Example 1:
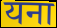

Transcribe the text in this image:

यना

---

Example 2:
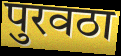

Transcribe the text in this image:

पुरवठा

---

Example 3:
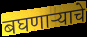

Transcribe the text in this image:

बघणाऱ्याचे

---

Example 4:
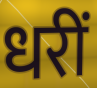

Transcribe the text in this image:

धरीं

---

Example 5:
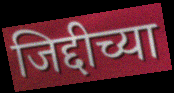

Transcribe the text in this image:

जिद्दीच्या